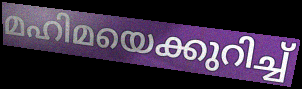
മഹിമയെക്കുറിച്ച്